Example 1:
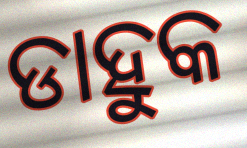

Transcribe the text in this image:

ଡାହୁକ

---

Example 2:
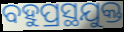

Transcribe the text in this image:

ବହୁପ୍ରସ୍ଥଯୁକ୍ତ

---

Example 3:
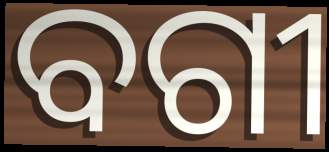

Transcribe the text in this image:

ବଗୀ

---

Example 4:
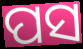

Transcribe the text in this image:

ପସ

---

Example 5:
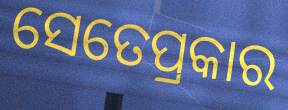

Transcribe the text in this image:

ସେତେପ୍ରକାର